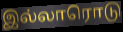
இல்லாரொடு